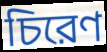
চিরেণ